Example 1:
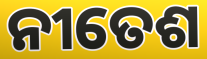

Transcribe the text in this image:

ନୀତେଶ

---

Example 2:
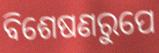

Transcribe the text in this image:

ବିଶେଷଣରୁପେ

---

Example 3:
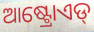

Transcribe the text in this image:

ଆଷ୍ଟ୍ରୋଏଡ୍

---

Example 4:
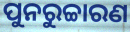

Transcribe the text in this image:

ପୁନରୁଚ୍ଚାରଣ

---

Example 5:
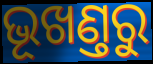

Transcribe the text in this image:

ଭୂଖଣ୍ତରୁ